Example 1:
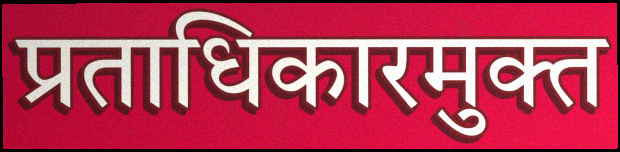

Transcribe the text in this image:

प्रताधिकारमुक्त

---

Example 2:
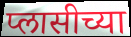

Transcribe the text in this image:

प्लासीच्या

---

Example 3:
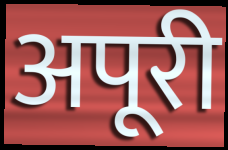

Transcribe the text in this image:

अपूरी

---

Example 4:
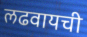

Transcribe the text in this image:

लढवायची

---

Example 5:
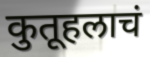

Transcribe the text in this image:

कुतूहलाचं